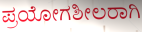
ಪ್ರಯೋಗಶೀಲರಾಗಿ